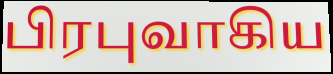
பிரபுவாகிய